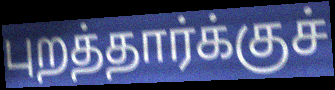
புறத்தார்க்குச்